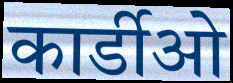
कार्डीओ